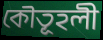
কৌতূহলী